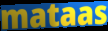
mataas